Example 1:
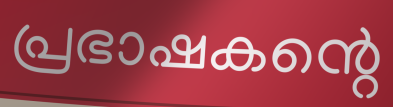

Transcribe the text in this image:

പ്രഭാഷകന്റെ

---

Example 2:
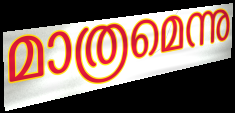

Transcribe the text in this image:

മാത്രമെന്നു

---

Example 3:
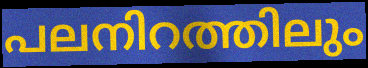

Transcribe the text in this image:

പലനിറത്തിലും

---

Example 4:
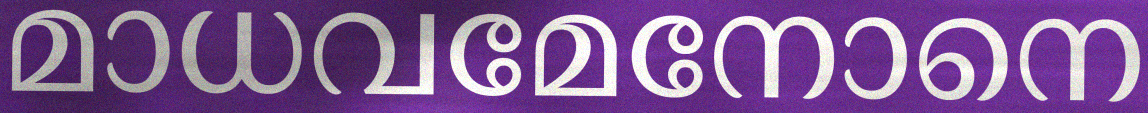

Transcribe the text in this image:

മാധവമേനോനെ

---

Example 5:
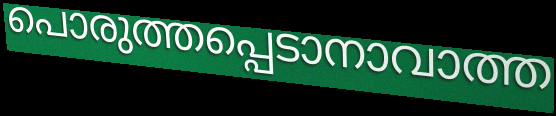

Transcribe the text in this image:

പൊരുത്തപ്പെടാനാവാത്ത